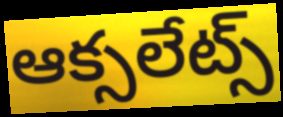
ఆక్సలేట్స్